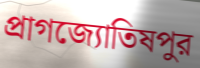
প্রাগজ্যোতিষপুর